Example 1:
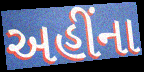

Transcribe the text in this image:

અહીંના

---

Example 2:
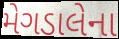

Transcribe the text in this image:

મેગડાલેના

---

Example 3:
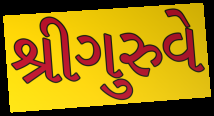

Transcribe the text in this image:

શ્રીગુરુવે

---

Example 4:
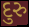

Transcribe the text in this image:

દુરુ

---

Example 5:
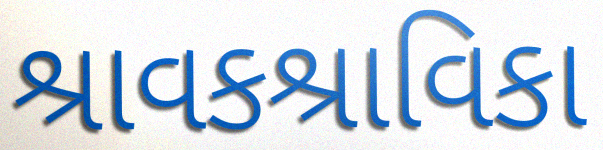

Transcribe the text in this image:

શ્રાવકશ્રાવિકા